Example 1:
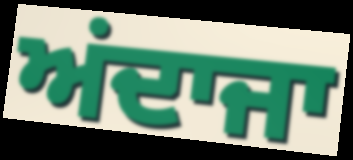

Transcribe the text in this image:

ਅਂਦਾਜਾ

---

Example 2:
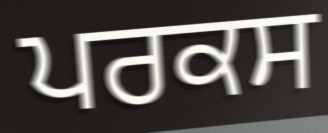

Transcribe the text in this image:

ਪਰਕਸ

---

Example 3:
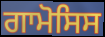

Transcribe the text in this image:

ਗਾਮੋਸਿਸ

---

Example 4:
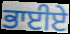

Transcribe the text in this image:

ਭਾਈਏ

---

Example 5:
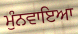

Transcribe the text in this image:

ਮੁੰਨਵਾਇਆ